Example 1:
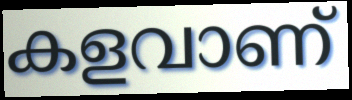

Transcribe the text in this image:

കളവാണ്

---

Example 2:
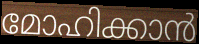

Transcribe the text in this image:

മോഹിക്കാൻ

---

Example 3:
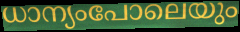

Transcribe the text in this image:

ധാന്യംപോലെയും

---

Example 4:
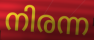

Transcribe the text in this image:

നിരന്ന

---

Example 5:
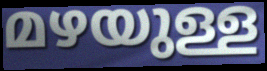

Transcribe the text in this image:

മഴയുള്ള